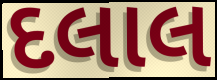
દલાલ